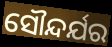
ସୌନ୍ଦର୍ଯର